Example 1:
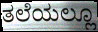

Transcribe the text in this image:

ತಲೆಯಲ್ಲೂ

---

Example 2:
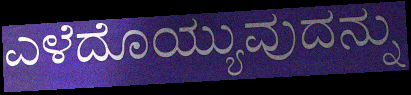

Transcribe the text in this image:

ಎಳೆದೊಯ್ಯುವುದನ್ನು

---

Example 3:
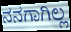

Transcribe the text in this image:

ನನಗಾಗಿಲ್ಲ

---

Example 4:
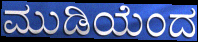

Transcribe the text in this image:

ಮುಡಿಯೆಂದ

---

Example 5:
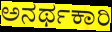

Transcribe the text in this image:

ಅನರ್ಥಕಾರಿ